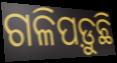
ଗଳିପଡ଼ୁଛି